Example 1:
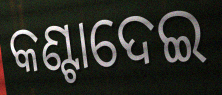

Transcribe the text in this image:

କଣ୍ଟାଦେଇ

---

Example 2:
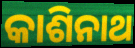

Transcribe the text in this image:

କାଶିନାଥ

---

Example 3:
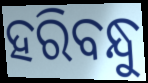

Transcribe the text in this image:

ହରିବନ୍ଧୁ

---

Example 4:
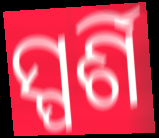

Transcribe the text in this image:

ସ୍ପର୍ଶି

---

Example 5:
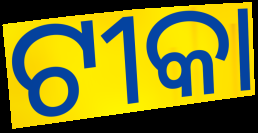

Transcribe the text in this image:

ଟୀକା